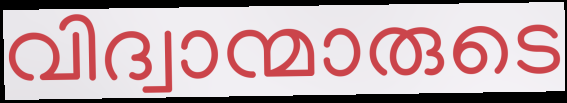
വിദ്വാന്മാരുടെ